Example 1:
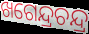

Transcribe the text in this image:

ଖଗେନ୍ଦ୍ରଚନ୍ଦ୍ର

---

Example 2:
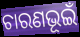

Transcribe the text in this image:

ଚାରଣଭୂଇଁ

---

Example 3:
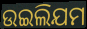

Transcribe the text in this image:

ଉଇଲିଯମ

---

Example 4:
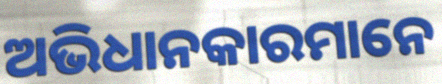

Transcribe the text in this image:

ଅଭିଧାନକାରମାନେ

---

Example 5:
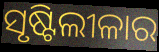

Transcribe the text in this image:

ସୃଷ୍ଟିଲୀଳାର